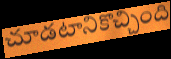
చూడటానికొచ్చింది